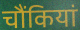
चौंकियां